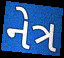
નેત્ર